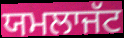
ਯਮਲਾਜੱਟ